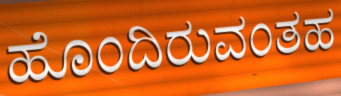
ಹೊಂದಿರುವಂತಹ